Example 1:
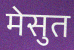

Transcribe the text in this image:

मेसुत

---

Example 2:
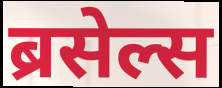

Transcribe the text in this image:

ब्रसेल्स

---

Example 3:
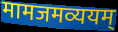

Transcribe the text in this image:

मामजमव्ययम्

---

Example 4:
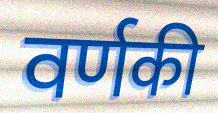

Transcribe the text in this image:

वर्णकी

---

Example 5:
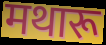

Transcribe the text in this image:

मथारू